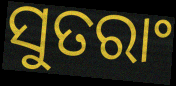
ସୁତରାଂ